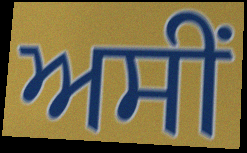
ਅਸੀੰ